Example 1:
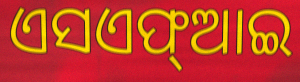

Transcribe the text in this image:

ଏସଏଫ୍ଆଇ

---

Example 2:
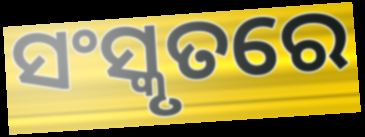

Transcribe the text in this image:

ସଂସ୍କୃତରେ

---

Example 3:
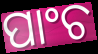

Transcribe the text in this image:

ପାଂଚ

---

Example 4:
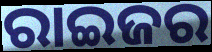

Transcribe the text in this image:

ରାଇଜର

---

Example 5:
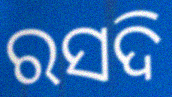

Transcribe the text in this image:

ରସଦି